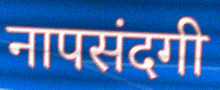
नापसंदगी